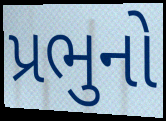
પ્રભુનો